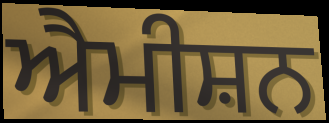
ਐਮੀਸ਼ਨ